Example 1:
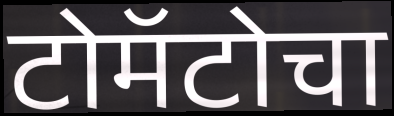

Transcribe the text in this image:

टोमॅटोचा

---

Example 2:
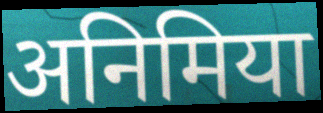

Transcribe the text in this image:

अनिमिया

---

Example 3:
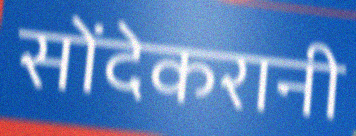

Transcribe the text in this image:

सोंदेकरानी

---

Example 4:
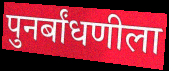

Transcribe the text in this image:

पुनर्बांधणीला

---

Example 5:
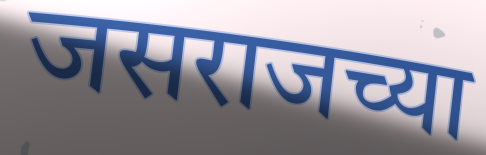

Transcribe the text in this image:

जसराजच्या